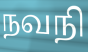
நவநி